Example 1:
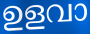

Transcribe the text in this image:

ഉളവാ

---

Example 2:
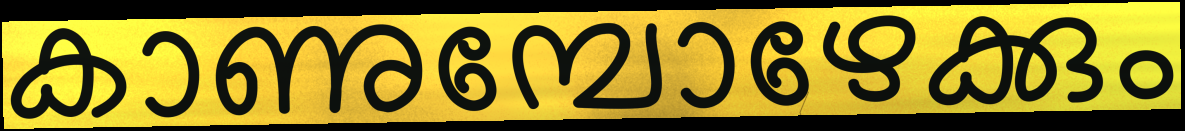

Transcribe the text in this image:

കാണുമ്പോഴേക്കും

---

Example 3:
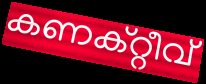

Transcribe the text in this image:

കണക്റ്റീവ്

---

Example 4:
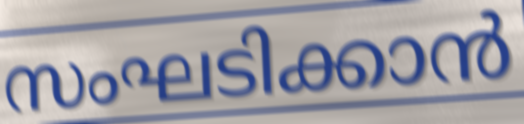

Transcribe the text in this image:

സംഘടിക്കാൻ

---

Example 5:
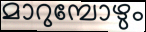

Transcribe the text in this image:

മാറുമ്പോഴും